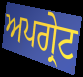
ਅਪਗ੍ਰੇਟ